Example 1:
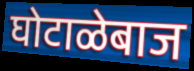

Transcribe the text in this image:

घोटाळेबाज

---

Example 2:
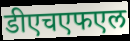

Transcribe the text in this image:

डीएचएफएल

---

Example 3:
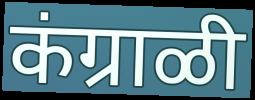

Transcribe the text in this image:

कंग्राळी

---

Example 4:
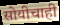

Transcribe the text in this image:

सोयीचाही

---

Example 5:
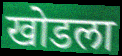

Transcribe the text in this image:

खोडला